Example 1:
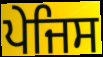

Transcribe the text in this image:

ਪੇਜਿਸ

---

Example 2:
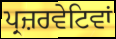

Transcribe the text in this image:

ਪ੍ਰਜ਼ਰਵੇਟਿਵਾਂ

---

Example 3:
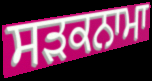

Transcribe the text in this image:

ਸਡ਼ਕਨਾਮਾ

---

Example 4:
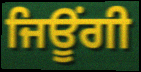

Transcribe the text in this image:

ਜਿਊਂਗੀ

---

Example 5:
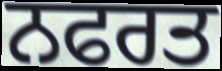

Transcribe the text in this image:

ਨਫਰਤ